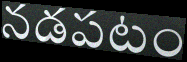
నడపటం